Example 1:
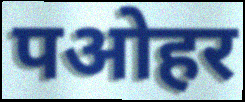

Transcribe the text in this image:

पओहर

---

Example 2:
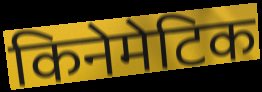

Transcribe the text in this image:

किनेमेटिक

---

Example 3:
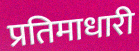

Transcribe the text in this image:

प्रतिमाधारी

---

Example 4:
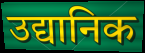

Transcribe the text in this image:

उद्यानिक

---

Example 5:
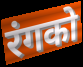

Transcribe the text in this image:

रंगको